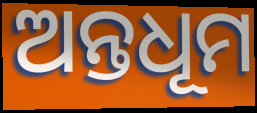
ଅନ୍ତଧୂମ